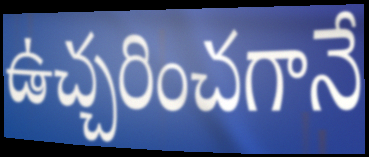
ఉచ్చరించగానే